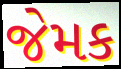
જેમક